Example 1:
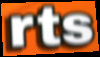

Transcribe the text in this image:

rts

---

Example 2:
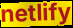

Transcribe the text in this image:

netlify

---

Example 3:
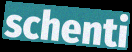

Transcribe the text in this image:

schenti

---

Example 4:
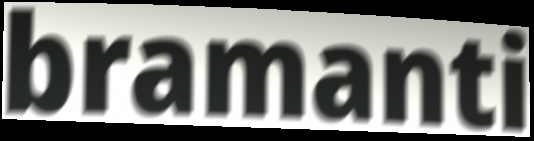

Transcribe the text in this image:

bramanti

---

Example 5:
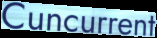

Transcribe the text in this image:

Cuncurrent